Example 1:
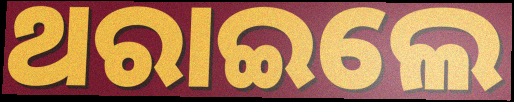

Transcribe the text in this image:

ଥରାଇଲେ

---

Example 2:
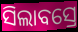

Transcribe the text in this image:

ସିଲାବସ୍ରେ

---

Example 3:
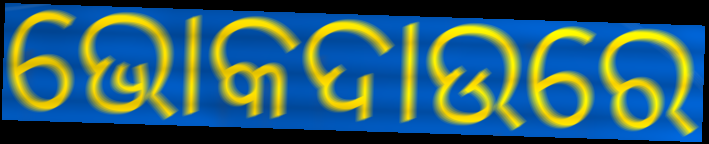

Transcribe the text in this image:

ଭୋକଦାଉରେ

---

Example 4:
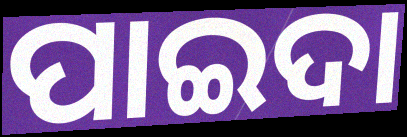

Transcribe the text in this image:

ପାଇଦା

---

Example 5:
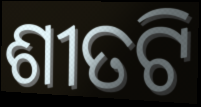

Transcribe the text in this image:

ଶୀତଟି